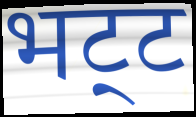
भट्‌ट